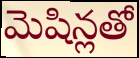
మెషిన్లతో